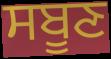
ਸਬੂਣ